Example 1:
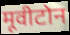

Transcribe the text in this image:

मूवीटोन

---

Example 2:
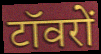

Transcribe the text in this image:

टॉवरों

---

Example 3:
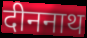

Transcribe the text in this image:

दीननाथ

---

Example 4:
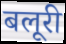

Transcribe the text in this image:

बलूरी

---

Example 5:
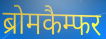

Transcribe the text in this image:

ब्रोमकैम्फर